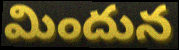
మిందున